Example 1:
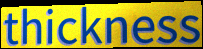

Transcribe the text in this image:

thickness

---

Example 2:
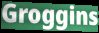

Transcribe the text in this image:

Groggins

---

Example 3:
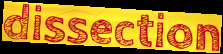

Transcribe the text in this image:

dissection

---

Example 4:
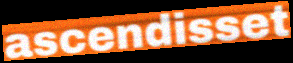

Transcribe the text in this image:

ascendisset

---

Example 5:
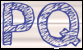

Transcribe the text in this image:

PQ